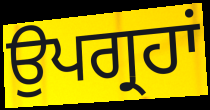
ਉਪਗ੍ਰਹਾਂ